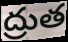
ద్రుత